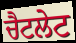
ਚੈਟਲੇਟ